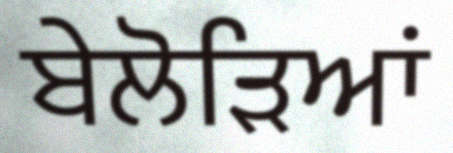
ਬੇਲੋੜਿਆਂ